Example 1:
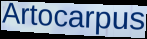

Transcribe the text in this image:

Artocarpus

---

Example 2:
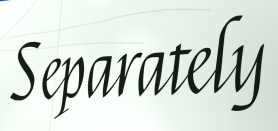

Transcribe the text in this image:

Separately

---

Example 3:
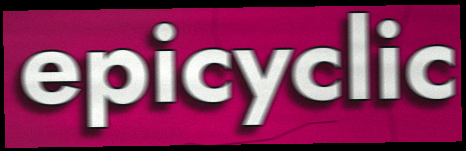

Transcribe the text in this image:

epicyclic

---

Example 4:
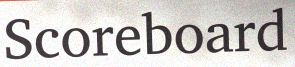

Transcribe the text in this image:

Scoreboard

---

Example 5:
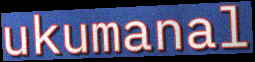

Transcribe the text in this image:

ukumanal